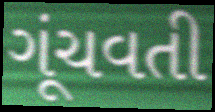
ગૂંચવતી